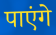
पाएंगे